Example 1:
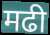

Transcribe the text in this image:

मढी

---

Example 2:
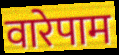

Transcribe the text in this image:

वारेपाम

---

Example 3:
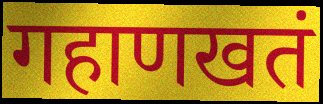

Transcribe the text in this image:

गहाणखतं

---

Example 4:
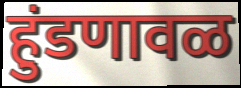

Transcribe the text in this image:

हुंडणावळ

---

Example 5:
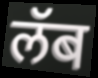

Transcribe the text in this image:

लॅब